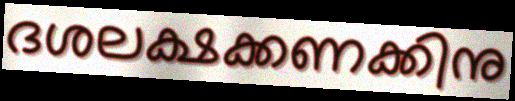
ദശലക്ഷക്കണക്കിനു